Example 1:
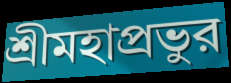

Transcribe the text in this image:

শ্রীমহাপ্রভুর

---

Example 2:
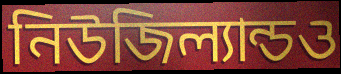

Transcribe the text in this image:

নিউজিল্যান্ডও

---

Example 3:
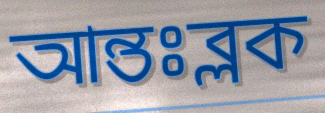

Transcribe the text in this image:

আন্তঃব্লক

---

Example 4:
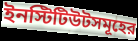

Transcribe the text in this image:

ইনস্টিটিউটসমূহের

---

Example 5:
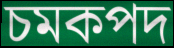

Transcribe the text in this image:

চমকপদ